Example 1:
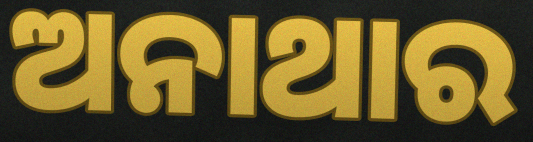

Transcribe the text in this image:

ଅନାଥାର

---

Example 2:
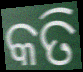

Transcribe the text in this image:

କତି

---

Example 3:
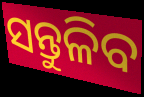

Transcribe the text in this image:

ସନ୍ତୁଳିବ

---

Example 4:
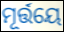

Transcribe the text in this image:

ମୂର୍ତ୍ତୟେ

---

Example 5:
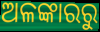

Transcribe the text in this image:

ଅଳଙ୍କାରରୁ